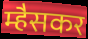
म्हैसकर